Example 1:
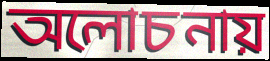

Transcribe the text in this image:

অলোচনায়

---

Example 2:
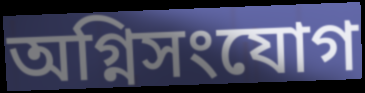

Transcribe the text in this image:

অগ্নিসংযোগ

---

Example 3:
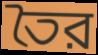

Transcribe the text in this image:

তৈর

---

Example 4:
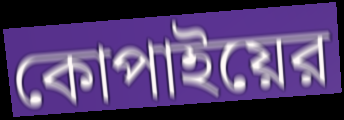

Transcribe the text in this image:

কোপাইয়ের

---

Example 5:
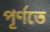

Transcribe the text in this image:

পূর্ণতে